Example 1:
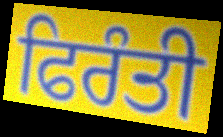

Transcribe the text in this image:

ਫਿਰੰਤੀ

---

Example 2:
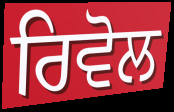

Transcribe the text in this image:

ਰਿਵੋਲ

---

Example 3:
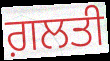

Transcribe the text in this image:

ਗ਼ਲਤੀ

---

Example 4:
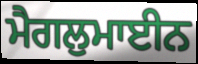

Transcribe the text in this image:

ਮੈਗਲੁਮਾਈਨ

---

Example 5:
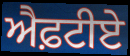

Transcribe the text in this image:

ਐਫ਼ਟੀਏ